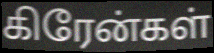
கிரேன்கள்